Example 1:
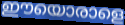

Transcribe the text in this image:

ഈയൊരാളെ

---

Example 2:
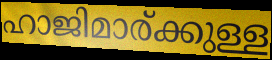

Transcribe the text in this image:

ഹാജിമാര്ക്കുള്ള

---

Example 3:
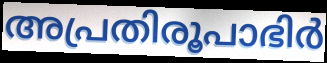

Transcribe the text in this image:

അപ്രതിരൂപാഭിർ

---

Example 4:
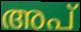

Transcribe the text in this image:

അപ്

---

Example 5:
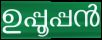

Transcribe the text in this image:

ഉപ്പൂപ്പൻ